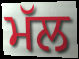
ਮੱਲ